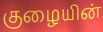
குழையின்